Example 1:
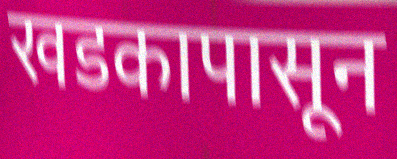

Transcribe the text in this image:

खडकापासून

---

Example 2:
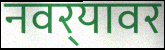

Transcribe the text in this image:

नवर्‍यावर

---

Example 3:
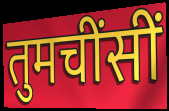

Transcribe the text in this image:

तुमचींसीं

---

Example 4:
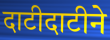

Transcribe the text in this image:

दाटीदाटीने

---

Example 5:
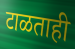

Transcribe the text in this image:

टाळताही